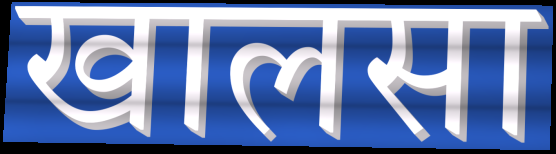
खालसा